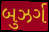
બુઝર્ગ